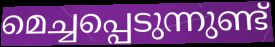
മെച്ചപ്പെടുന്നുണ്ട്